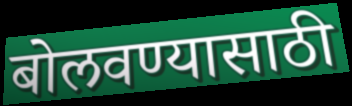
बोलवण्यासाठी